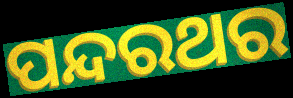
ପନ୍ଦରଥର